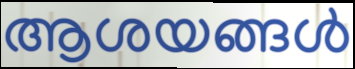
ആശയങ്ങൾ